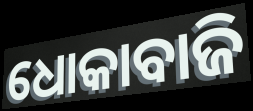
ଧୋକାବାଜି